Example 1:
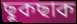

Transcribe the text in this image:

ছুকছাক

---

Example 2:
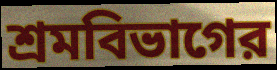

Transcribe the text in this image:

শ্রমবিভাগের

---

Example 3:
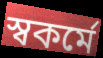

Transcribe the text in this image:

স্বকর্মে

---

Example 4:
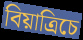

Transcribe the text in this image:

বিয়াত্রিচে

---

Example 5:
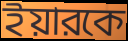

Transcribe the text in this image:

ইয়ারকে